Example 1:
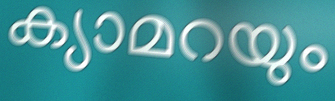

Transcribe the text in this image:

ക്യാമറയും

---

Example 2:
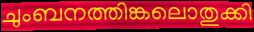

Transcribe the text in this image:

ചുംബനത്തിങ്കലൊതുക്കി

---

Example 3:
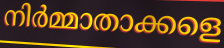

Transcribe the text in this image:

നിർമ്മാതാക്കളെ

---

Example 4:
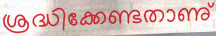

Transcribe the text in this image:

ശ്രദ്ധിക്കേണ്ടതാണു്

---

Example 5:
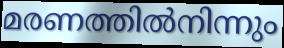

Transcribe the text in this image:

മരണത്തിൽനിന്നും